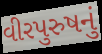
વીરપુરુષનું